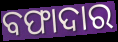
ବଫାଦାର